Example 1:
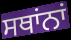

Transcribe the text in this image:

ਸਥਾਂਨਾਂ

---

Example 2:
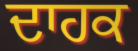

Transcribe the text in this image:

ਦਾਹਕ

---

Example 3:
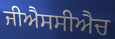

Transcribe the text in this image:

ਜੀਐਸਸੀਐਚ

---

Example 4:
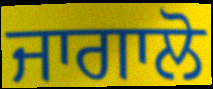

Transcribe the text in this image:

ਜਾਗਾਲੋ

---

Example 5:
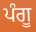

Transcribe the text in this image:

ਪੰਗੂ